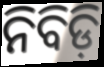
ନିବିଡ଼ି